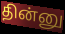
தின்னு